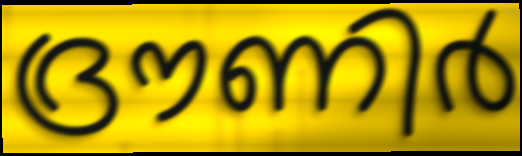
ദ്രൗണിർ